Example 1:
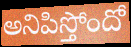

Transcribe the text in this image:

అనిపిస్తోందో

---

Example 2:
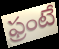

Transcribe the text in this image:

ఫ్రంటే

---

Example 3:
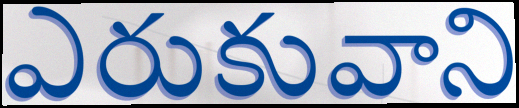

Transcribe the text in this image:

ఎరుకువాని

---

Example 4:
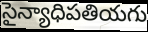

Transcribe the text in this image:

సైన్యాధిపతియగు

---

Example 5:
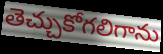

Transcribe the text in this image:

తెచ్చుకోగలిగాను